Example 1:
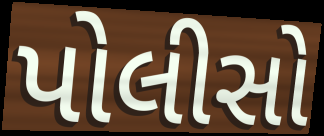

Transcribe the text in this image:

પોલીસો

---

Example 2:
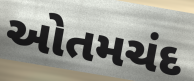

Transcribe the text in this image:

ઓતમચંદ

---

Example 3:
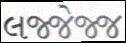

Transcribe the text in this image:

લજ્જેજ્જ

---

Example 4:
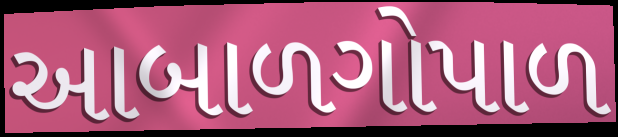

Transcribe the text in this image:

આબાળગોપાળ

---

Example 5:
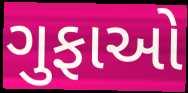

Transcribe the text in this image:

ગુફાઓ